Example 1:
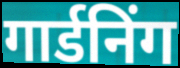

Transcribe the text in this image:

गार्डनिंग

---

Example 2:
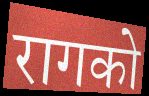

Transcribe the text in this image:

रागको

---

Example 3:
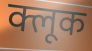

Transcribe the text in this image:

क्लूक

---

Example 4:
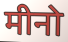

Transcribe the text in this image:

मीनो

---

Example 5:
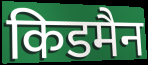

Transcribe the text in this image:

किडमैन